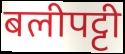
बलीपट्टी